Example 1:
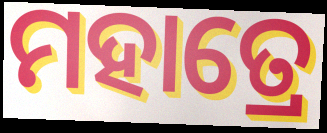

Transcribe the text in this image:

ମହାତ୍ରେ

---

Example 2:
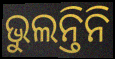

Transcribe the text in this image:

ଭୁଲନ୍ତିନି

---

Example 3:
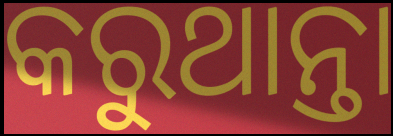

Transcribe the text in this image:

କରୁଥାନ୍ତା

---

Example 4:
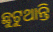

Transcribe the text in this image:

ଛୁଟୁଥାନ୍ତି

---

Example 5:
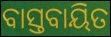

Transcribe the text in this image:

ବାସ୍ତବାୟିତ